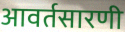
आवर्तसारणी